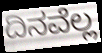
ದಿನವೆಲ್ಲ